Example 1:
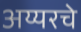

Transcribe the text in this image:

अय्यरचे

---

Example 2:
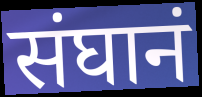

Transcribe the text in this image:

संघानं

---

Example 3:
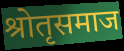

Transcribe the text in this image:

श्रोतृसमाज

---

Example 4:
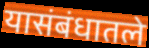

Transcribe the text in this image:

यासंबंधातले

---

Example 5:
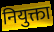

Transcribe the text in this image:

नियुक्ता